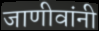
जाणीवांनी